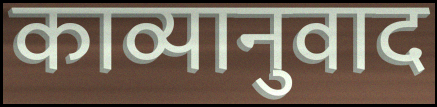
काव्यानुवाद